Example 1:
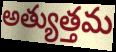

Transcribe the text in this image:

అత్యుత్తమ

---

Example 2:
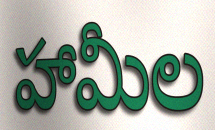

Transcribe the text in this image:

హామీల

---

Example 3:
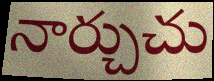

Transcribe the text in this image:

నార్చుచు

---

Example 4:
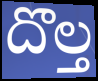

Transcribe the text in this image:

దొల్త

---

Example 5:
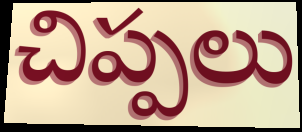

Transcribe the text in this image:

చిప్పలు